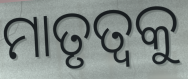
ମାତୃତ୍ବକୁ